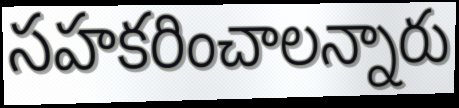
సహకరించాలన్నారు